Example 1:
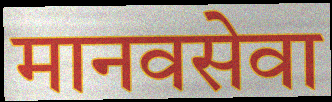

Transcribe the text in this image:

मानवसेवा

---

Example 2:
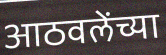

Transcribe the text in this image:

आठवलेंच्या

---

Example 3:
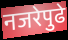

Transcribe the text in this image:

नजरेपुढे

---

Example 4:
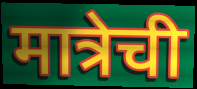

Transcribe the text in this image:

मात्रेची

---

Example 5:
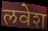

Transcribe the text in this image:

लवेश